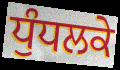
ਧੁੰਧਲਕੇ